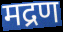
मद्रण